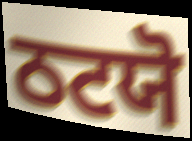
ਠਟਯੋ